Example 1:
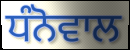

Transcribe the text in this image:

ਧੰਨੋਵਾਲ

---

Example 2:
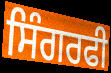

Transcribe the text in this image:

ਸਿੰਗਰਫੀ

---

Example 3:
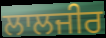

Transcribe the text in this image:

ਲਾਲਜੀਰ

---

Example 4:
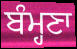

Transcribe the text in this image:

ਬੰਮ੍ਹਣਾ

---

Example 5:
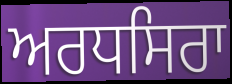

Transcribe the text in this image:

ਅਰਧਸਿਰਾ